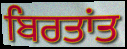
ਬਿਰਤਾਂਤ